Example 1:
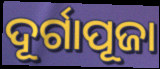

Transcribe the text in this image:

ଦୂର୍ଗାପୂଜା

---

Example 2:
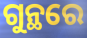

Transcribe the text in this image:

ଗୁନ୍ଥରେ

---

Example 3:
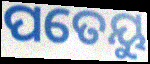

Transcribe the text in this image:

ପତେୟୁ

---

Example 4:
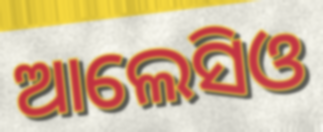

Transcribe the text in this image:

ଆଲେସିଓ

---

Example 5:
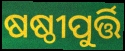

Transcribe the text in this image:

ଷଷ୍ଠୀପୁର୍ତ୍ତି